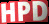
HPD